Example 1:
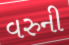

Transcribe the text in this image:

વરુની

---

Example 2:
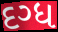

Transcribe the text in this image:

દગ્ધ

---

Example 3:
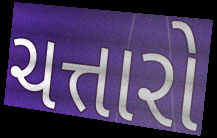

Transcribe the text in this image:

ચત્તારો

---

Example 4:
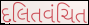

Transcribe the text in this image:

દલિતવંચિત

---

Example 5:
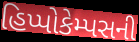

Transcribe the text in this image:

હિપ્પોકેમ્પસની